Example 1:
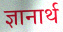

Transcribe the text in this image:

ज्ञानार्थ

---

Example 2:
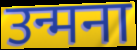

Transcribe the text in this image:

उन्मना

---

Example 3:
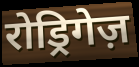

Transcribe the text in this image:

रोड्रिगेज़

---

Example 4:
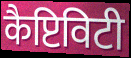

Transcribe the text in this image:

कैप्टिविटी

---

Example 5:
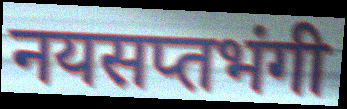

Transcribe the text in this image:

नयसप्तभंगी